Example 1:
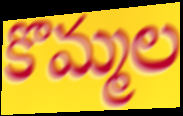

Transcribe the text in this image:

కొమ్మల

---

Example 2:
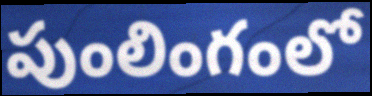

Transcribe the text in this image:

పుంలింగంలో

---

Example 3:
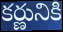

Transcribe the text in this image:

కర్ణునికి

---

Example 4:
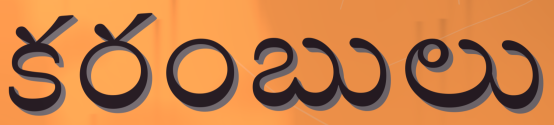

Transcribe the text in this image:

కరంబులు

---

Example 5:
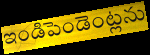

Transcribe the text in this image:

ఇండిపెండెంట్లను